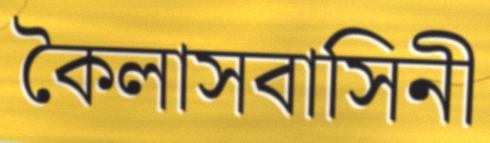
কৈলাসবাসিনী